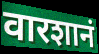
वारशानं